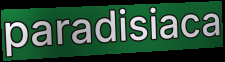
paradisiaca